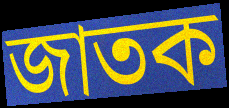
জাতক